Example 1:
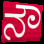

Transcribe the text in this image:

ನೌ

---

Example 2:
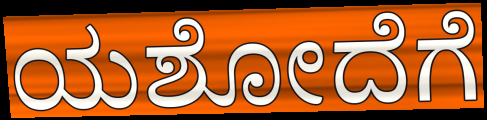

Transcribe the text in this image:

ಯಶೋದೆಗೆ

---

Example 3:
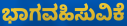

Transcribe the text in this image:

ಭಾಗವಹಿಸುವಿಕೆ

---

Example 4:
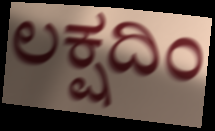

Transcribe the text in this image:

ಲಕ್ಷದಿಂ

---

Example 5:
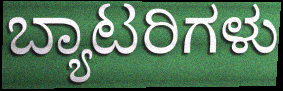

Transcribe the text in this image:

ಬ್ಯಾಟರಿಗಳು